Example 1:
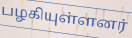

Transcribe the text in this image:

பழகியுள்ளனர்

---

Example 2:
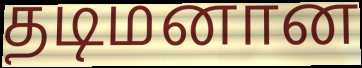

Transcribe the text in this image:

தடிமனான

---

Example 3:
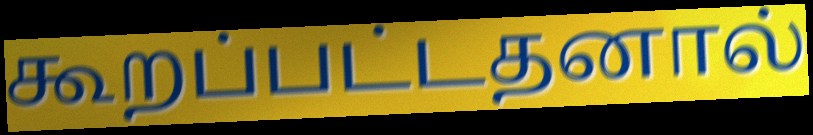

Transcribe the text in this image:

கூறப்பட்டதனால்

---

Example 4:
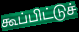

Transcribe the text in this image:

கூப்பிட்டுச்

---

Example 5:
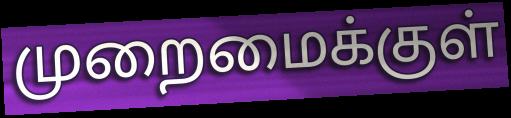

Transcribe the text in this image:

முறைமைக்குள்